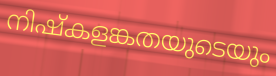
നിഷ്കളങ്കതയുടെയും